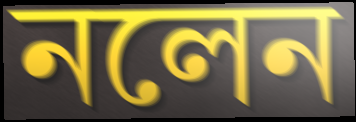
নলেন